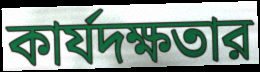
কার্যদক্ষতার